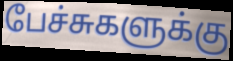
பேச்சுகளுக்கு